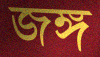
জঙ্গ